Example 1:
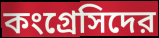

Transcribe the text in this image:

কংগ্রেসিদের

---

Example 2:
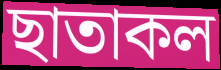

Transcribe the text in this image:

ছাতাকল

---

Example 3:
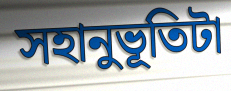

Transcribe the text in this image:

সহানুভূতিটা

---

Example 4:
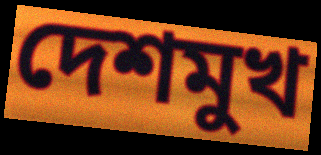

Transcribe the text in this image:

দেশমুখ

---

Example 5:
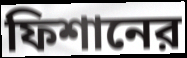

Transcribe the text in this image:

ফিশানের